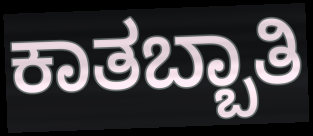
ಕಾತಬ್ಬಾತಿ